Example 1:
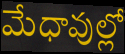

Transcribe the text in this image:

మేధావుల్లో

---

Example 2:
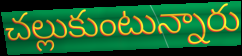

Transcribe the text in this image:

చల్లుకుంటున్నారు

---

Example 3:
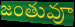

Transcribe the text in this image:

జంతువూ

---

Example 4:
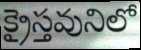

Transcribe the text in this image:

క్రైస్తవునిలో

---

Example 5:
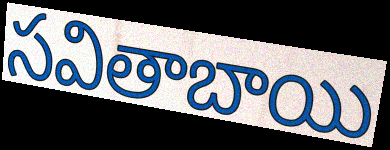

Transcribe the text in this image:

సవితాబాయి